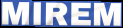
MIREM